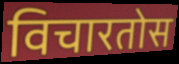
विचारतोस